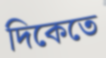
দিকেতে